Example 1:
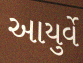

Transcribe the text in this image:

આયુર્વે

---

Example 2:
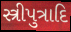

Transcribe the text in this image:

સ્ત્રીપુત્રાદિ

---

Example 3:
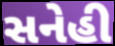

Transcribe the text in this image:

સનેહી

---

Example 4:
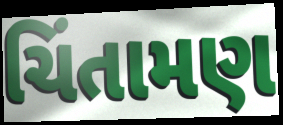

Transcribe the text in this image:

ચિંતામણ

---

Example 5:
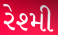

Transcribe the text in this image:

રેશ્મી